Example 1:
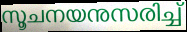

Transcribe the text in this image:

സൂചനയനുസരിച്ച്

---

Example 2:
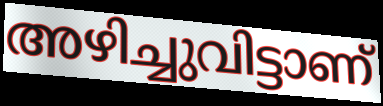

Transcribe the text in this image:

അഴിച്ചുവിട്ടാണ്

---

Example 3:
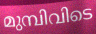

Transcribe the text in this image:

മുമ്പിവിടെ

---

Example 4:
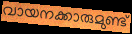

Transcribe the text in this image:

വായനക്കാരുമുണ്ട്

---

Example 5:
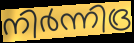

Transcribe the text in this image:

നിർന്നിദ്ര